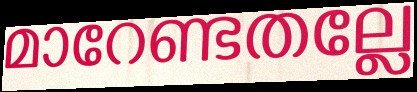
മാറേണ്ടതല്ലേ